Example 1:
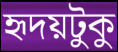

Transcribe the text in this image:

হৃদয়টুকু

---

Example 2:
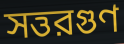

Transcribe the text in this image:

সত্তরগুণ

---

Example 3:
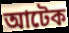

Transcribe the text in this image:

আটেক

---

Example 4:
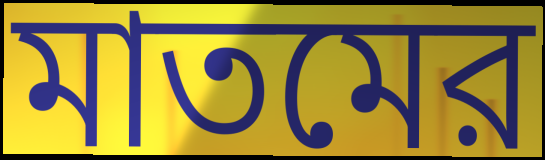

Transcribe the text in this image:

মাতমের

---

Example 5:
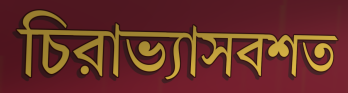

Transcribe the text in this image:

চিরাভ্যাসবশত